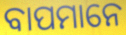
ବାପମାନେ